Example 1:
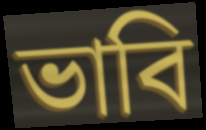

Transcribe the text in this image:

ভাবি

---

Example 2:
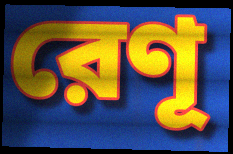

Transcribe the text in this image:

রেণূ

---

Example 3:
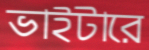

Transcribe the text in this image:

ভাইটারে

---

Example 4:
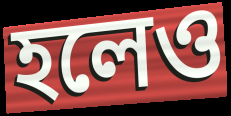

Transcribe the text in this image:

হলেও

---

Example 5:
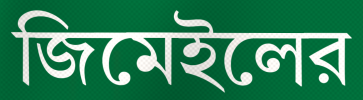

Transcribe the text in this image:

জিমেইলের